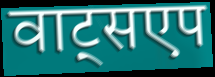
वाट्सएप